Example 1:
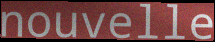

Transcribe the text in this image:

nouvelle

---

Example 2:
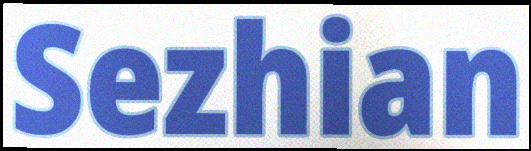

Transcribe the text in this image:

Sezhian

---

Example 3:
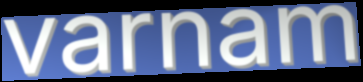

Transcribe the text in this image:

varnam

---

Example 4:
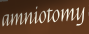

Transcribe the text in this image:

amniotomy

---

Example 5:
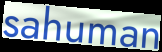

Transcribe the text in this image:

sahuman